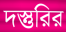
দস্তুরির